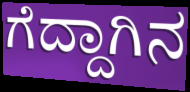
ಗೆದ್ದಾಗಿನ